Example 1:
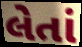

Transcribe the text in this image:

લેતાં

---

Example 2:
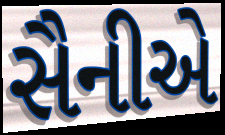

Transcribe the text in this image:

સૈનીએ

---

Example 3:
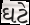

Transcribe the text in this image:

ઘટે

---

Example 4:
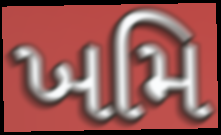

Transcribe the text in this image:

ખમિ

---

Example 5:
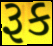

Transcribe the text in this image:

રૂક